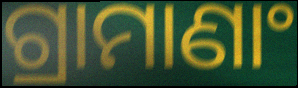
ଗ୍ରାମାଣାଂ